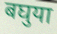
बघुया